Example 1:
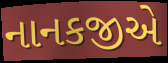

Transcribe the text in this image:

નાનકજીએ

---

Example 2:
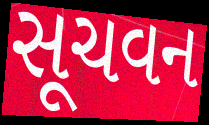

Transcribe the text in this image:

સૂચવન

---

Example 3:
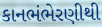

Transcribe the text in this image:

કાનભંભેરણીથી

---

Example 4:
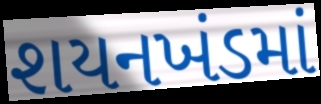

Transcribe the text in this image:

શયનખંડમાં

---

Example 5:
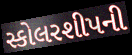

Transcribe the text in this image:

સ્કોલરશીપની